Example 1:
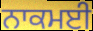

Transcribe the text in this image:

ਨਾਕਮਈ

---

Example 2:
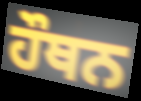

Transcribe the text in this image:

ਹੌਥਨ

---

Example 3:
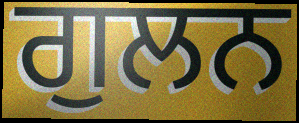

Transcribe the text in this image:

ਗੁਲਨ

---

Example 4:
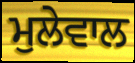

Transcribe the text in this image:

ਮੁਲੇਵਾਲ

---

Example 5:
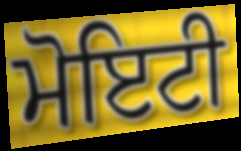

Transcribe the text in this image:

ਮੋਇਟੀ